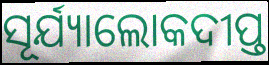
ସୂର୍ଯ୍ୟାଲୋକଦୀପ୍ତ